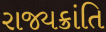
રાજ્યક્રાંતિ